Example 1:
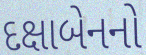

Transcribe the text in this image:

દક્ષાબેનનો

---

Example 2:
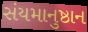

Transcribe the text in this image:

સંયમાનુષ્ઠાન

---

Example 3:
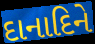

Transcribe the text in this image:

દાનાદિને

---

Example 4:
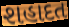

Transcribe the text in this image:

શહાદત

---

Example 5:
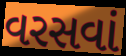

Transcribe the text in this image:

વરસવાં